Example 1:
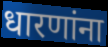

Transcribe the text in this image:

धारणांना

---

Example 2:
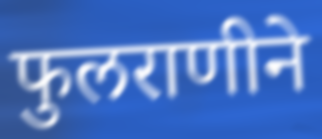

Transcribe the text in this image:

फुलराणीने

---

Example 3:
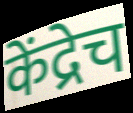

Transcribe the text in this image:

केंद्रेच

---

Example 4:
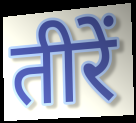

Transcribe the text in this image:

तीरें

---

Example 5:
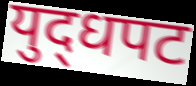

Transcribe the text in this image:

युद्धपट